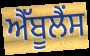
ਐੱਬੂਲੈਂਸ